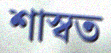
শাস্বত